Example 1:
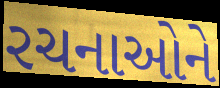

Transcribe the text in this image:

રચનાઓને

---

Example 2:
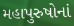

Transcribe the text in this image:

મહાપુરુષોનાં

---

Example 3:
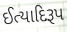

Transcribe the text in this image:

ઈત્યાદિરૂપ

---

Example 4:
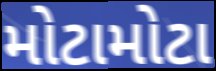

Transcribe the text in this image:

મોટામોટા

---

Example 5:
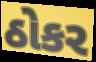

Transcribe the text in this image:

ઠોકર